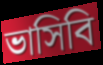
ভাসিবি